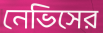
নেভিসের